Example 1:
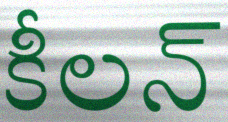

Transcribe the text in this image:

కీలన్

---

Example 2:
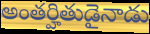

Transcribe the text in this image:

అంతర్హితుడైనాడు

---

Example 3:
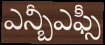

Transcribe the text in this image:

ఎన్బీఎఫ్సీ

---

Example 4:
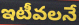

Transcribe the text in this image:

ఇటీవలనే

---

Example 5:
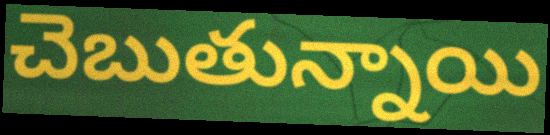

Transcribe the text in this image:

చెబుతున్నాయి